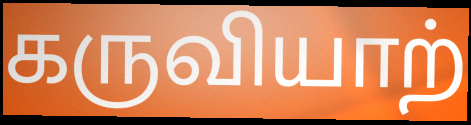
கருவியாற்